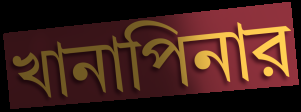
খানাপিনার